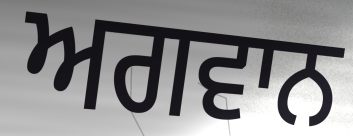
ਅਗਵਾਨ